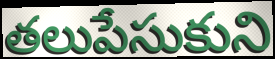
తలుపేసుకుని